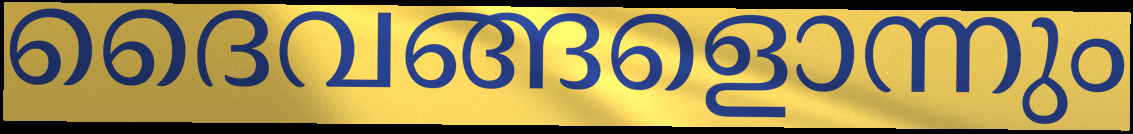
ദൈവങ്ങളൊന്നും